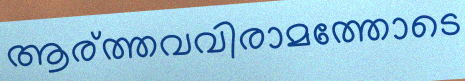
ആര്ത്തവവിരാമത്തോടെ